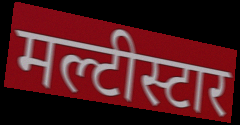
मल्टीस्टार